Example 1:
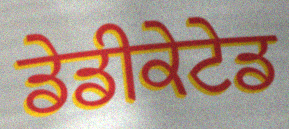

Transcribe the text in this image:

ਡੇਡੀਕੇਟੇਡ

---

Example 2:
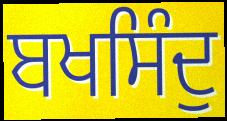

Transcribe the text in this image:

ਬਖਸਿੰਦੁ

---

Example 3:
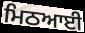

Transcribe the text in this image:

ਮਿਠਆਈ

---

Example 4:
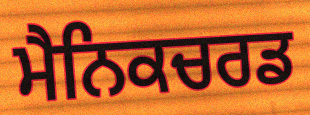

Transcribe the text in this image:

ਮੈਨਿਕਚਰਡ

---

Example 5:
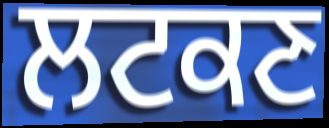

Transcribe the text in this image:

ਲਟਕਣ